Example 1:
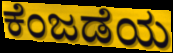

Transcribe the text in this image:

ಕೆಂಜಡೆಯ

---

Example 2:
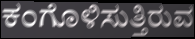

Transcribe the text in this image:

ಕಂಗೊಳಿಸುತ್ತಿರುವ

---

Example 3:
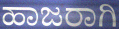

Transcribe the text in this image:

ಹಾಜರಾಗಿ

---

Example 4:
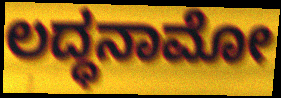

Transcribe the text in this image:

ಲದ್ಧನಾಮೋ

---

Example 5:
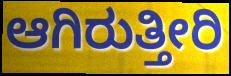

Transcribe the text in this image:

ಆಗಿರುತ್ತೀರಿ